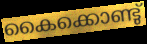
കൈക്കൊണ്ടു്